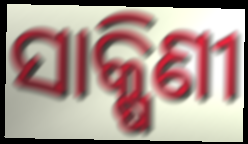
ସାକ୍ଷିଣୀ